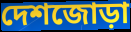
দেশজোড়া